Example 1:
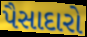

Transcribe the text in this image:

પૈસાદારો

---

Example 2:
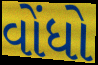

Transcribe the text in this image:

વોંધો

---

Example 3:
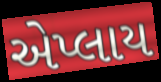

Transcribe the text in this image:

એપ્લાય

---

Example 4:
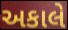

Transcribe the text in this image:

અકાલે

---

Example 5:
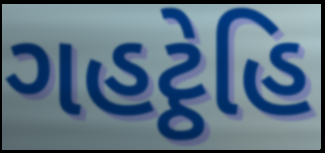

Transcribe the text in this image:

ગહટ્ઠેહિ